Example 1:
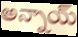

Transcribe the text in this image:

అన్నాయ్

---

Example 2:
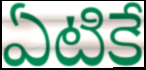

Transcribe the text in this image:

ఏటికే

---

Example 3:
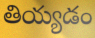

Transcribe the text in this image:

తియ్యడం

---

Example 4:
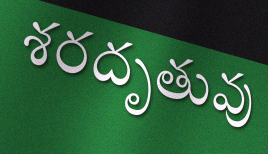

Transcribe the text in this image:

శరదృతువు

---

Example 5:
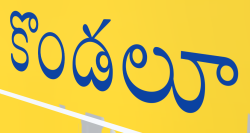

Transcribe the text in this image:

కొండలూ